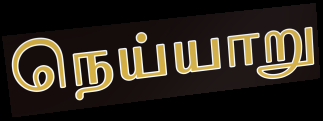
நெய்யாறு